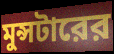
মুন্সটারের